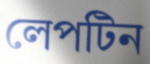
লেপটিন